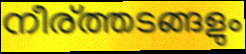
നീര്ത്തടങ്ങളും